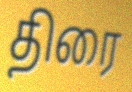
திரை